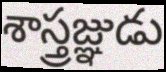
శాస్త్రజ్ఞుడు